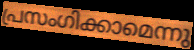
പ്രസംഗിക്കാമെന്നു